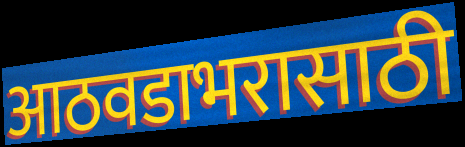
आठवडाभरासाठी